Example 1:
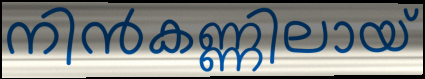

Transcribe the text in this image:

നിൻകണ്ണിലായ്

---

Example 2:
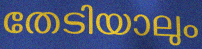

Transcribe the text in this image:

തേടിയാലും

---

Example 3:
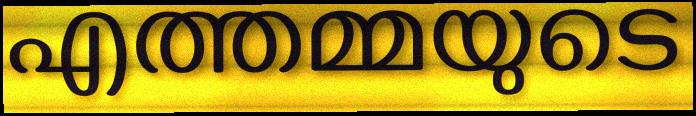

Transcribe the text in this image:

എത്തമ്മയുടെ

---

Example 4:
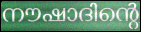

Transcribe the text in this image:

നൗഷാദിന്റെ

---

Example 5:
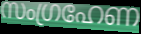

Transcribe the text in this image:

സംഗ്രഹേണ